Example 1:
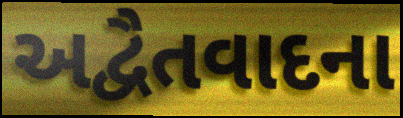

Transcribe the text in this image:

અદ્વૈતવાદના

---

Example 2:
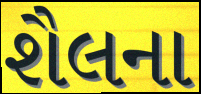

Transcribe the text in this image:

શૈલના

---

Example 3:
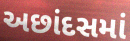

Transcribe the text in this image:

અછાંદસમાં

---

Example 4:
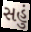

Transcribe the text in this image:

સહું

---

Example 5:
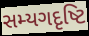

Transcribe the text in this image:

સમ્યગદૃષ્ટિ